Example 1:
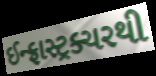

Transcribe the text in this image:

ઈન્ફ્રાસ્ટ્રક્ચરથી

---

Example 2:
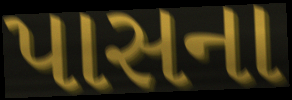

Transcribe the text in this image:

પાસના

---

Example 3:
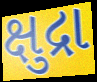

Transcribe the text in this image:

ક્ષુદ્રા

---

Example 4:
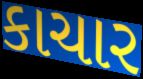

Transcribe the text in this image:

કાચાર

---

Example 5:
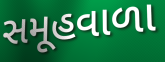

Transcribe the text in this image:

સમૂહવાળા